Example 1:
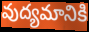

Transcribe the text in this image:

వుద్యమానికి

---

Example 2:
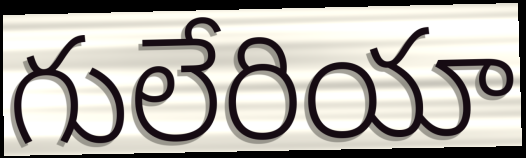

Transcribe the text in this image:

గులేరియా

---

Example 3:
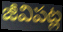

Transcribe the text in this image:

జీవిపట్ల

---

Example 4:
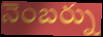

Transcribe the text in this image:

నెంబర్ను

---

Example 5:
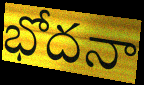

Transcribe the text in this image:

భోదనా